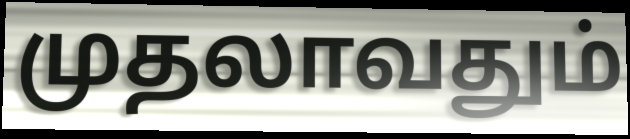
முதலாவதும்